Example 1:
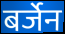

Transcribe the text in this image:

बर्जेन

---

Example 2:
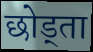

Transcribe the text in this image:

छोड्ता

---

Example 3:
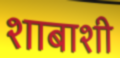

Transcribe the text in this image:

शाबाशी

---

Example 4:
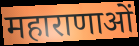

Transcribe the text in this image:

महाराणाओं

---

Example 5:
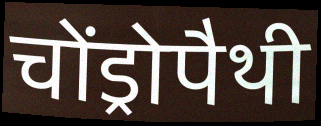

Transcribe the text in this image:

चोंड्रोपैथी